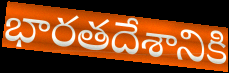
భారతదేశానికి